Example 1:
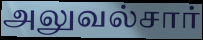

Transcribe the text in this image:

அலுவல்சார்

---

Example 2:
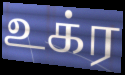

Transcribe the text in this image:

உக்ர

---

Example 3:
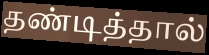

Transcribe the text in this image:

தண்டித்தால்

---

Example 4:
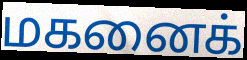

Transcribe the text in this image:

மகனைக்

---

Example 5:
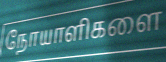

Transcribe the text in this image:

நோயாளிகளை